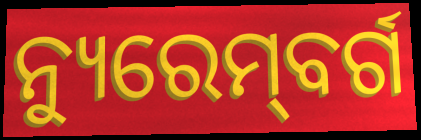
ନ୍ୟୁରେମ୍‌ବର୍ଗ